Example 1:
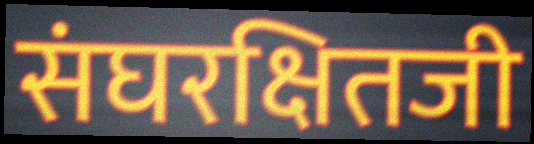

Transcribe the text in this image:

संघरक्षितजी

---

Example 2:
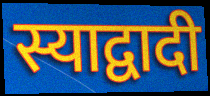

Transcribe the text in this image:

स्याद्वादी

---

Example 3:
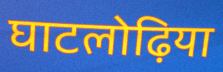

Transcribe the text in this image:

घाटलोढ़िया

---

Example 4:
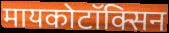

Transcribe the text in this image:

मायकोटॉक्सिन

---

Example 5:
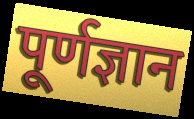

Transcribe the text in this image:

पूर्णज्ञान